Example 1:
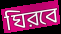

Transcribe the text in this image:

ঘিরবে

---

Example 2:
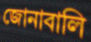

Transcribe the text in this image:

জোনাবালি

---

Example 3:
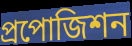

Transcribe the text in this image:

প্রপোজিশন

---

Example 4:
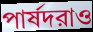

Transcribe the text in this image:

পার্ষদরাও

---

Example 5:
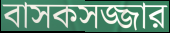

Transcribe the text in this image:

বাসকসজ্জার